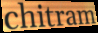
chitram